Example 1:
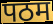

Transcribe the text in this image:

पठम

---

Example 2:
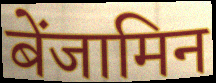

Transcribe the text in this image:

बेंजामिन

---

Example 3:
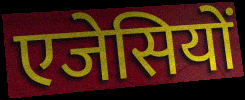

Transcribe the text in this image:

एजेसियों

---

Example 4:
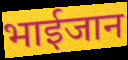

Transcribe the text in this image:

भाईजान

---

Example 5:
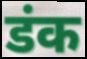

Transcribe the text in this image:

डंक